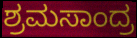
ಶ್ರಮಸಾಂದ್ರ